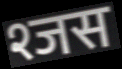
श्जस